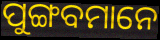
ପୁଙ୍ଗବମାନେ